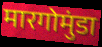
मारगोमुंडा